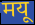
मयू